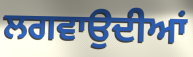
ਲਗਵਾਉਦੀਆਂ